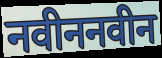
नवीननवीन